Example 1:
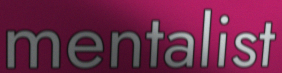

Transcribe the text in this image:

mentalist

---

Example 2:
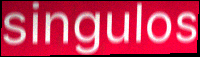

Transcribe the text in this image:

singulos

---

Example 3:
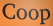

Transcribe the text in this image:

Coop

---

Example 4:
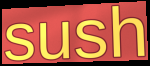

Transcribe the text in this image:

sush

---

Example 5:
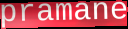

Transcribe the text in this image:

pramane